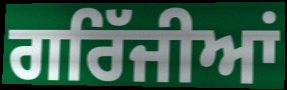
ਗਰਿੱਜੀਆਂ